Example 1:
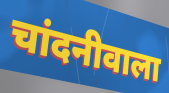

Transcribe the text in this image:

चांदनीवाला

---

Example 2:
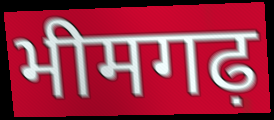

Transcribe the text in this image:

भीमगढ़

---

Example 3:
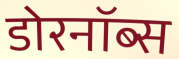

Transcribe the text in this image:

डोरनॉब्स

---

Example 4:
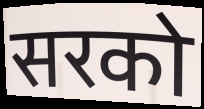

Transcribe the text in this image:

सरको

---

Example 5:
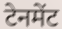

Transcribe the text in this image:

टेनमेंट